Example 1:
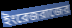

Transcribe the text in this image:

ইংরেজরাজের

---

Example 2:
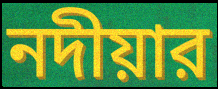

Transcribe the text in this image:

নদীয়ার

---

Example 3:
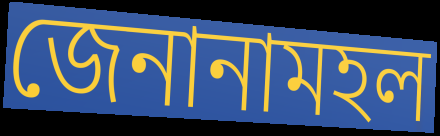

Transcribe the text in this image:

জেনানামহল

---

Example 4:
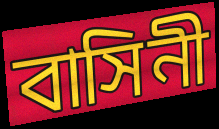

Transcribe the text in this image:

বাসিনী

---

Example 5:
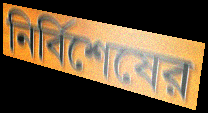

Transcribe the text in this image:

নির্বিশেষের